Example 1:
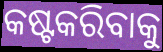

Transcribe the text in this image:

କଷ୍ଟକରିବାକୁ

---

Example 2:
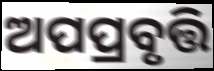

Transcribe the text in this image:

ଅପପ୍ରବୃତ୍ତି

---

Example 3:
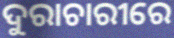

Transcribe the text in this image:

ଦୁରାଚାରୀରେ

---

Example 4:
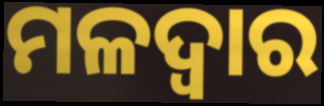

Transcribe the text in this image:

ମଳଦ୍ଵାର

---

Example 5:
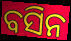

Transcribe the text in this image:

ବସିନ